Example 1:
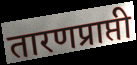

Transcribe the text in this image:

तारणप्राप्ती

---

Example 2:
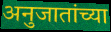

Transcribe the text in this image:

अनुजातांच्या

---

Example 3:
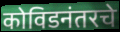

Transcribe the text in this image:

कोविडनंतरचे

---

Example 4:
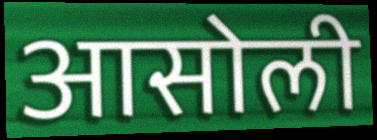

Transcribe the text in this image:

आसोली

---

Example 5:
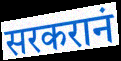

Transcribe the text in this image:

सरकरानं